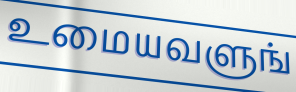
உமையவளுங்